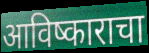
आविष्काराचा